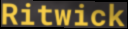
Ritwick